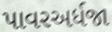
પાવરઅર્ધજા